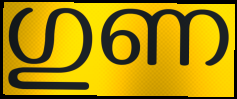
ഗുണ